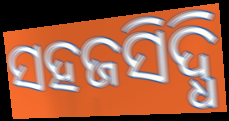
ସହଜସିଦ୍ଧି